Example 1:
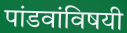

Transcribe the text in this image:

पांडवांविषयी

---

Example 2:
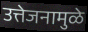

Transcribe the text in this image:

उत्तेजनामुळे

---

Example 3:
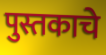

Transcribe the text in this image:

पुस्तकाचे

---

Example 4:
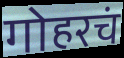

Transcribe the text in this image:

गोहरचं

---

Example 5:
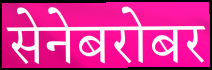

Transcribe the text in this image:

सेनेबरोबर